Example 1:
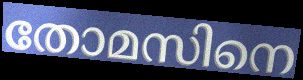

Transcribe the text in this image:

തോമസിനെ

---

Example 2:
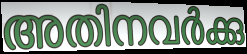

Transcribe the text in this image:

അതിനവർക്കു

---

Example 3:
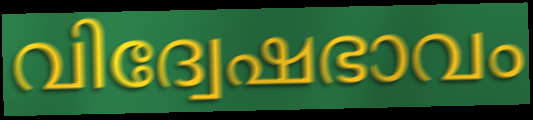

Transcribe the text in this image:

വിദ്വേഷഭാവം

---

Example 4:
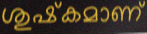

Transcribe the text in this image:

ശുഷ്‌കമാണ്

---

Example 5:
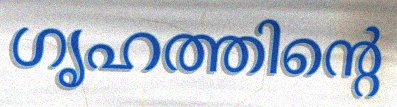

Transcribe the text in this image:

ഗൃഹത്തിന്റെ